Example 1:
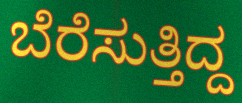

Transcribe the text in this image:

ಬೆರೆಸುತ್ತಿದ್ದ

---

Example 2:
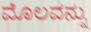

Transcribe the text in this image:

ಮೊಲವನ್ನು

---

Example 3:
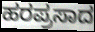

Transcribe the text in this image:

ಹರಪ್ರಸಾದ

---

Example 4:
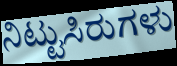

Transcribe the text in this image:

ನಿಟ್ಟುಸಿರುಗಳು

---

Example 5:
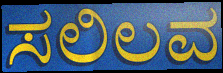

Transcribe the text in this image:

ಸಲಿಲವ